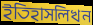
ইতিহাসলিখন